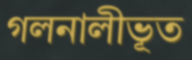
গলনালীভূত